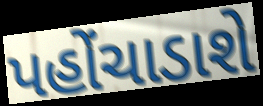
પહોંચાડાશે